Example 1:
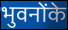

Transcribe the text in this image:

भुवनोंके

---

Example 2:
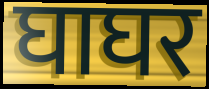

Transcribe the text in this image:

घाघर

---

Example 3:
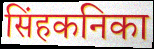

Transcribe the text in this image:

सिंहकनिका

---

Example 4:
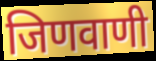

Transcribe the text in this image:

जिणवाणी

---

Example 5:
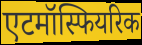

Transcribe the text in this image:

एटमॉस्फियरिक